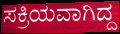
ಸಕ್ರಿಯವಾಗಿದ್ದ